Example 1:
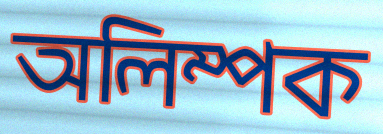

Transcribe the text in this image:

অলিম্পক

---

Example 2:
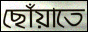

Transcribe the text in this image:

ছোঁয়াতে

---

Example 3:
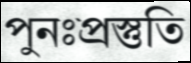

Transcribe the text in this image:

পুনঃপ্রস্তুতি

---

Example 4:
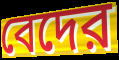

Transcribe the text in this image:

বেদের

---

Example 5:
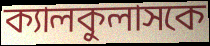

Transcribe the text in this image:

ক্যালকুলাসকে